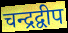
चन्द्रद्वीप